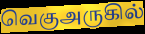
வெகுஅருகில்